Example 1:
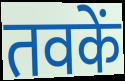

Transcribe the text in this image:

तवकें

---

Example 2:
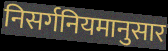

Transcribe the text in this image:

निसर्गनियमानुसार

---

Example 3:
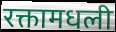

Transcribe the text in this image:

रक्तामधली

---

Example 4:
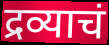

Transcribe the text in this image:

द्रव्याचं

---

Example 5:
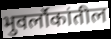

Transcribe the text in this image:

भुवर्लोकांतील